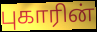
புகாரின்